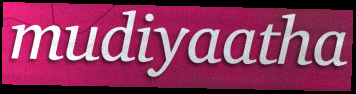
mudiyaatha